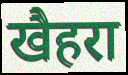
खैहरा